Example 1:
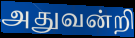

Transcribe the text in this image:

அதுவன்றி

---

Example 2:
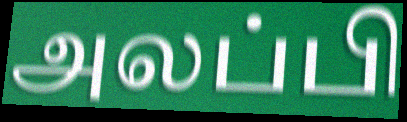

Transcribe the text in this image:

அலப்பி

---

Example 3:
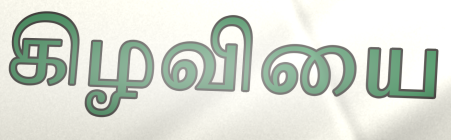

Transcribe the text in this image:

கிழவியை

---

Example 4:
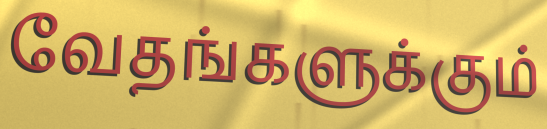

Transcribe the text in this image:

வேதங்களுக்கும்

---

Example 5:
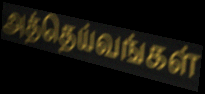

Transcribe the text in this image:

அத்தெய்வங்கள்